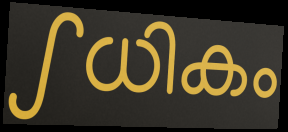
ഽധികം